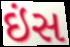
ઇંસ